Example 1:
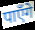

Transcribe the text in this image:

पाएँगे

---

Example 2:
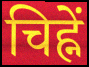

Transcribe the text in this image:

चिह्नें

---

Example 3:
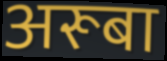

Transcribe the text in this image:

अरूबा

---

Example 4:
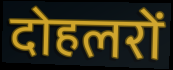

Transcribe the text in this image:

दोहलरों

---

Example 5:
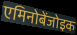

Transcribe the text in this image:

एमिनोबेंजोइक